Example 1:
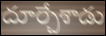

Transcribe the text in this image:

దూర్చేశాడు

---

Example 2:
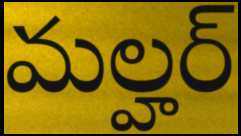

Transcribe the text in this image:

మల్హర్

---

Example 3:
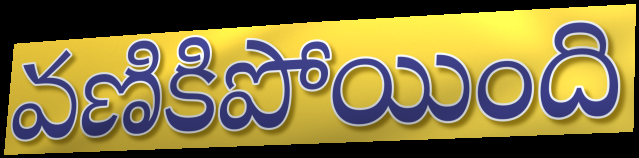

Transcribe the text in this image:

వణికిపోయింది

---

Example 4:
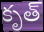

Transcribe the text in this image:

కృత్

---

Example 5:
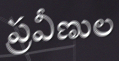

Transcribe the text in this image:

ప్రవీణుల